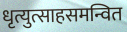
धृत्युत्साहसमन्वित